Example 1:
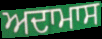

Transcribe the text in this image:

ਅਦਾਮਾਸ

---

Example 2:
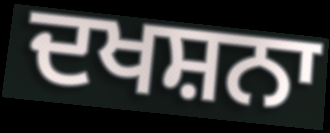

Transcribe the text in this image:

ਦਖਸ਼ਨਾ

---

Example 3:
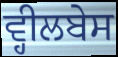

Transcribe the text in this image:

ਵ੍ਹੀਲਬੇਸ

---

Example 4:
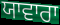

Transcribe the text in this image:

ਯਾਵਾਰਾ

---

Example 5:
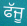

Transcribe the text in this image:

ਫੱਜੂ